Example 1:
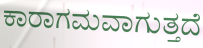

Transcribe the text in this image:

ಕಾರಾಗಮವಾಗುತ್ತದೆ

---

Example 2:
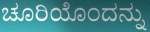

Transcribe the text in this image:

ಚೂರಿಯೊಂದನ್ನು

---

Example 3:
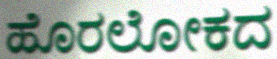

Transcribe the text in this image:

ಹೊರಲೋಕದ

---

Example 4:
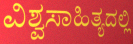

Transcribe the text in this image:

ವಿಶ್ವಸಾಹಿತ್ಯದಲ್ಲಿ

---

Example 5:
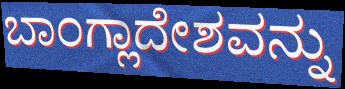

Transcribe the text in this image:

ಬಾಂಗ್ಲಾದೇಶವನ್ನು